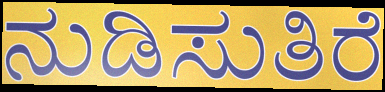
ನುಡಿಸುತಿರೆ